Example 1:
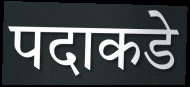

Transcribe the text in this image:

पदाकडे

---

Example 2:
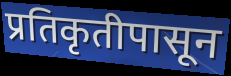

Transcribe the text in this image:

प्रतिकृतीपासून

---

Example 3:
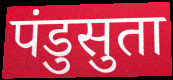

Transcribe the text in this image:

पंडुसुता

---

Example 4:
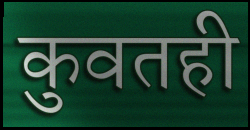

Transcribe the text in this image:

कुवतही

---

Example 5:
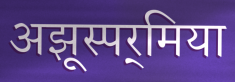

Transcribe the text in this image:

अझूस्पर्मिया